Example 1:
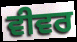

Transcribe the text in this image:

ਵੀਵਰ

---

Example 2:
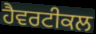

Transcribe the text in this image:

ਹੈਵਰਟੀਕਲ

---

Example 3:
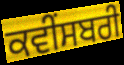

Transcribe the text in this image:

ਕਵੀਂਸਬਰੀ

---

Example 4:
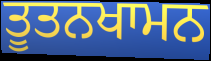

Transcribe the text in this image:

ਤੂਤਨਖਾਮਨ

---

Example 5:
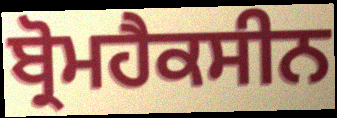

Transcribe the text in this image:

ਬ੍ਰੋਮਹੈਕਸੀਨ